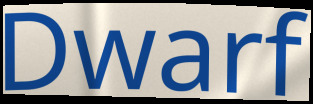
Dwarf